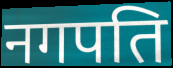
नगपति